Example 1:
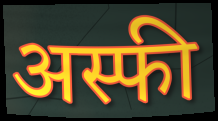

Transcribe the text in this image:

अस्फी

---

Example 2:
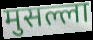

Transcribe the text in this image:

मुसल्ला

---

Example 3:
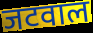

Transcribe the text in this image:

जटवाल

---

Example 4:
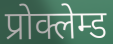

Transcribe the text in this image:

प्रोक्लेम्ड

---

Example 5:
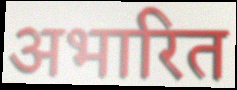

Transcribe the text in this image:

अभारित